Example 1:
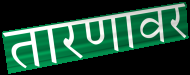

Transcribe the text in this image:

तारणावर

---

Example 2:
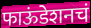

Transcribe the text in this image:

फाऊंडेशनचं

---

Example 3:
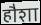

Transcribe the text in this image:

हौशा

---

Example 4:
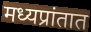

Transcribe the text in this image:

मध्यप्रांतात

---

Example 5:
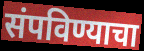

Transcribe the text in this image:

संपविण्याचा